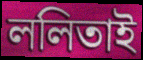
ললিতাই